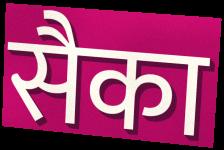
सैका